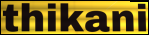
thikani